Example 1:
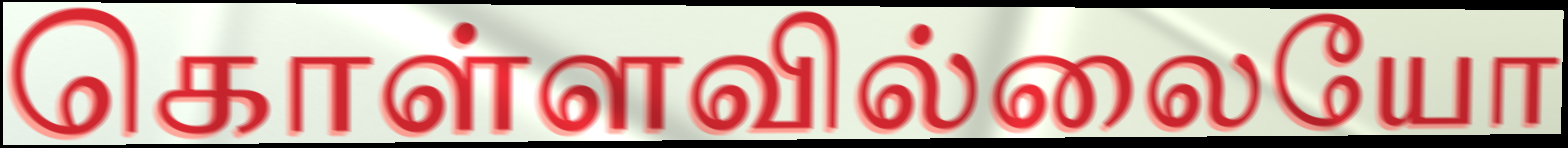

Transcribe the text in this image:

கொள்ளவில்லையோ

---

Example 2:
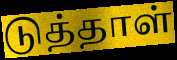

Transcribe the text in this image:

டுத்தாள்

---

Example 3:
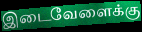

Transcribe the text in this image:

இடைவேளைக்கு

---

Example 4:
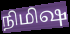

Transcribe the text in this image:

நிமிஷ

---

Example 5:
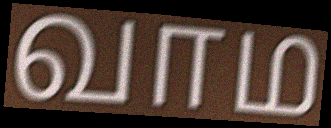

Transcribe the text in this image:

வாம